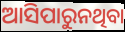
ଆସିପାରୁନଥିବା